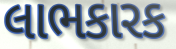
લાભકારક